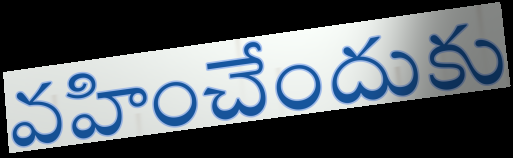
వహించేందుకు